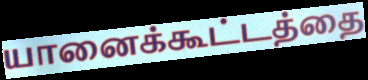
யானைக்கூட்டத்தை